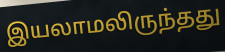
இயலாமலிருந்தது